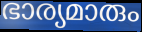
ഭാര്യമാരും